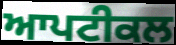
ਆਪਟੀਕਲ